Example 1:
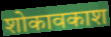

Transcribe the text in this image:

शोकावकाश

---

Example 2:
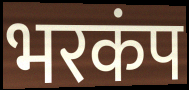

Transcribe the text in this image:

भरकंप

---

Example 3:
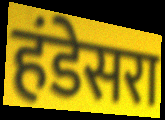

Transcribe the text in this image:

हंडेसरा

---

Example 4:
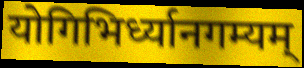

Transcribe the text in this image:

योगिभिर्ध्यानगम्यम्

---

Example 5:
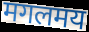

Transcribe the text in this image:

मगलमय